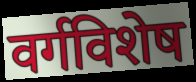
वर्गविशेष